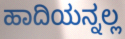
ಹಾದಿಯನ್ನಲ್ಲ